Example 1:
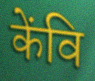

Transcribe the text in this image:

केंवि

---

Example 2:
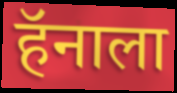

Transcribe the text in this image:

हॅनाला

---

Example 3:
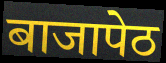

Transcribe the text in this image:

बाजापेठ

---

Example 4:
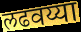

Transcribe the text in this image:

लढवय्या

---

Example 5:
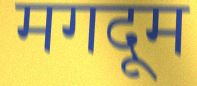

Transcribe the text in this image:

मगदूम